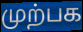
முற்பக